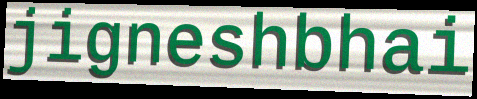
jigneshbhai